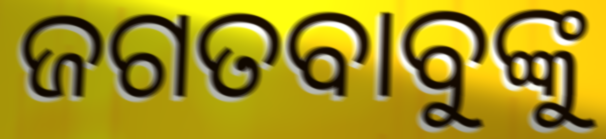
ଜଗତବାବୁଙ୍କୁ